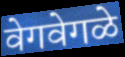
वेगवेगळे